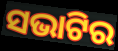
ସଭାଟିର